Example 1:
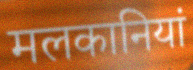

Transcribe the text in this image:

मलकानियां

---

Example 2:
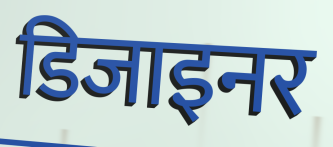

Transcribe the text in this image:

डिजाइनर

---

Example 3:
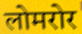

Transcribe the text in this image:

लोमरोर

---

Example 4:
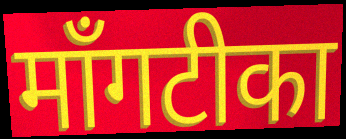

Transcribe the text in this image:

माँगटीका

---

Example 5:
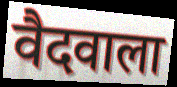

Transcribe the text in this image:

वैदवाला